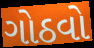
ગોઠવો